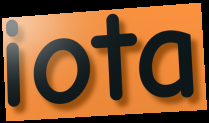
iota